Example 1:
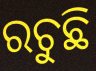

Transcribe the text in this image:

ରଚୁଛି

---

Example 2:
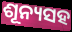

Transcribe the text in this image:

ଶୂନ୍ୟସହ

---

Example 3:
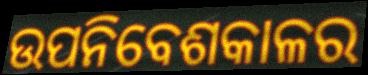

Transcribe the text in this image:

ଉପନିବେଶକାଳର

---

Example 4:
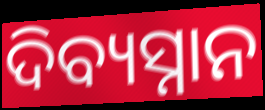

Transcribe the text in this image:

ଦିବ୍ୟସ୍ନାନ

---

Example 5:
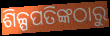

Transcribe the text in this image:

ଶିଳ୍ପପତିଙ୍କଠାରୁ